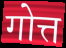
गोत्त